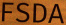
FSDA